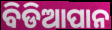
ବିଡିଆପାନ